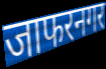
जाफरनगर